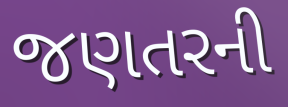
જણતરની